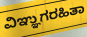
ವಿಞ್ಞುಗರಹಿತಾ